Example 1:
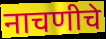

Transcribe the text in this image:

नाचणीचे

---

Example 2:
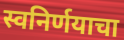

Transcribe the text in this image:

स्वनिर्णयाचा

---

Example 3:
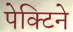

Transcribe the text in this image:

पेक्टिने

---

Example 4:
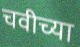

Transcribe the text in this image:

चवीच्या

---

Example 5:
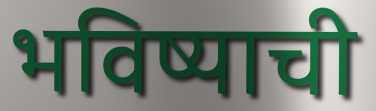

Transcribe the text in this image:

भविष्याची